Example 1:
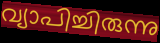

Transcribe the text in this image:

വ്യാപിച്ചിരുന്നു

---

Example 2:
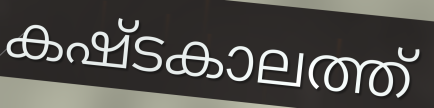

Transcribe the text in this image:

കഷ്ടകാലത്ത്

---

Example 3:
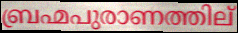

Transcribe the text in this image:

ബ്രഹ്മപുരാണത്തില്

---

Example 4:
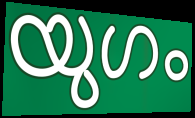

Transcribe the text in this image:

യുഗം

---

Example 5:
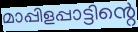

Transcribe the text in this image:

മാപ്പിളപ്പാട്ടിന്റെ